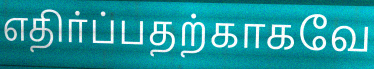
எதிர்ப்பதற்காகவே